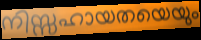
നിസ്സഹായതയെയും